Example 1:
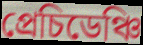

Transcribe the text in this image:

প্ৰেচিডেঞ্চি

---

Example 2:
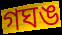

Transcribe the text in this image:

গঘঙ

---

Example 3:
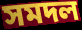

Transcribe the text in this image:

সমদল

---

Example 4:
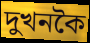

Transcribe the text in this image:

দুখনকৈ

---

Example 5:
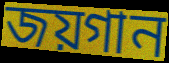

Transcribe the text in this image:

জয়গান